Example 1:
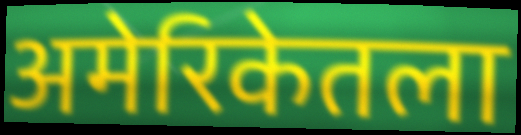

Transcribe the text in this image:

अमेरिकेतला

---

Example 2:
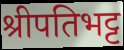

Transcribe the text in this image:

श्रीपतिभट्ट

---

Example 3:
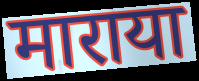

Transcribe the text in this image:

माराया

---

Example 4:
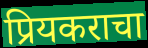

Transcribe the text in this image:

प्रियकराचा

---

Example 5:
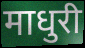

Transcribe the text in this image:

माधुरी